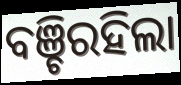
ବଞ୍ଚିରହିଲା